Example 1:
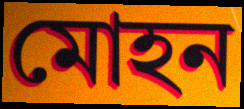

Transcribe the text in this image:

মোহন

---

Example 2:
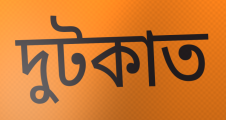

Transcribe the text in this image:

দুটকাত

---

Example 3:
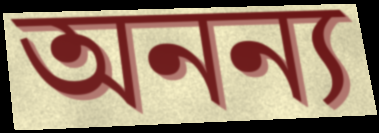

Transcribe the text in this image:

অনন্য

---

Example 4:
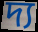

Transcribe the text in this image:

দ্য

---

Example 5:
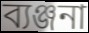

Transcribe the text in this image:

ব্যঞ্জনা